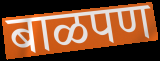
बाळपण